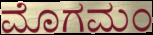
ಮೊಗಮಂ